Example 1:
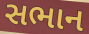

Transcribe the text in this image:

સભાન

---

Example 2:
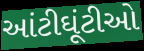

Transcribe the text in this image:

આંટીઘૂંટીઓ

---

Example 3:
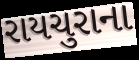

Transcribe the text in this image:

રાયચુરાના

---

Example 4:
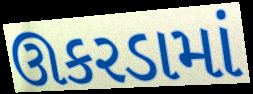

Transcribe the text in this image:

ઊકરડામાં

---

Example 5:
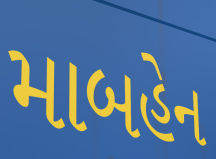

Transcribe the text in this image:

માબહેન